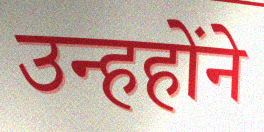
उन्हहोंने